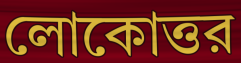
লোকোত্তর